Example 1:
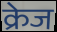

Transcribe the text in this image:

क्रेज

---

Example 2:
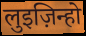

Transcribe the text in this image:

लुइज़िन्हो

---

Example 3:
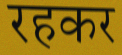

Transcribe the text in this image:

रहकर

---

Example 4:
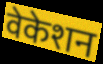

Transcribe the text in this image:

वेकेशन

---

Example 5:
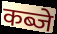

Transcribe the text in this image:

कब्जे